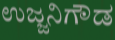
ಉಜ್ಜನಿಗೌಡ